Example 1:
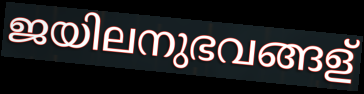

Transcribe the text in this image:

ജയിലനുഭവങ്ങള്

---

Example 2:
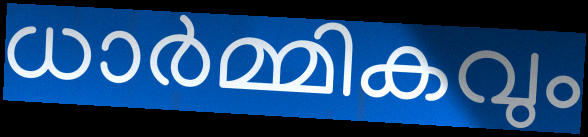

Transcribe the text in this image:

ധാർമ്മികവും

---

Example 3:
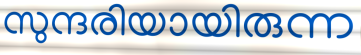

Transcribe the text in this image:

സുന്ദരിയായിരുന്ന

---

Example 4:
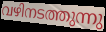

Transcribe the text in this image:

വഴിനടത്തുന്നു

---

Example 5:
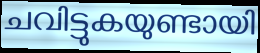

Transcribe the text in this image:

ചവിട്ടുകയുണ്ടായി